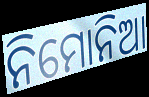
ନିମୋନିଆ